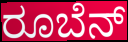
ರೂಬೆನ್